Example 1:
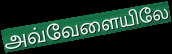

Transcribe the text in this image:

அவ்வேளையிலே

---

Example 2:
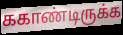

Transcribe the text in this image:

ககாண்டிருக்க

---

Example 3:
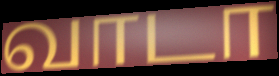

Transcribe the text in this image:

வாடா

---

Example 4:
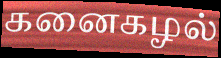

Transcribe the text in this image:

கனைகழல்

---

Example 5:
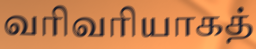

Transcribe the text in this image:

வரிவரியாகத்